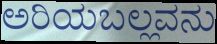
ಅರಿಯಬಲ್ಲವನು